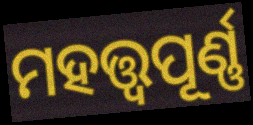
ମହତ୍ତ୍ୱପୂର୍ଣ୍ଣ